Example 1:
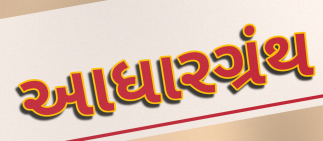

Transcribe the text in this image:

આધારગ્રંથ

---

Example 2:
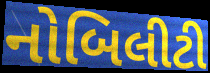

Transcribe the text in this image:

નોબિલીટી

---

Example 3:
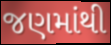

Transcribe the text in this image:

જણમાંથી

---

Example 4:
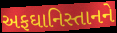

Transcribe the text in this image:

અફઘાનિસ્તાનને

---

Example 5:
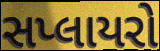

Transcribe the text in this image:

સપ્લાયરો